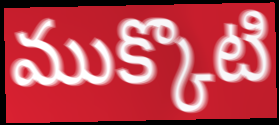
ముక్కొటి